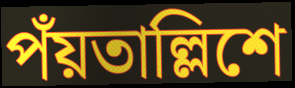
পঁয়তাল্লিশে